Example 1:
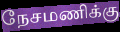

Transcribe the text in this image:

நேசமணிக்கு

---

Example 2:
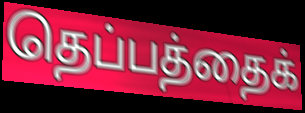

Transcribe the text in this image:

தெப்பத்தைக்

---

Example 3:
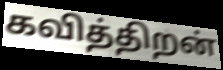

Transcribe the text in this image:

கவித்திறன்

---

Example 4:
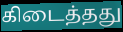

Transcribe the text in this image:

கிடைத்தது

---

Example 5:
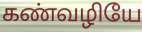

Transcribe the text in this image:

கண்வழியே